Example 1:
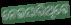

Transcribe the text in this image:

ନେଇସାରିଥିବେ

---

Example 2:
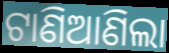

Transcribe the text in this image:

ଟାଣିଆଣିଲା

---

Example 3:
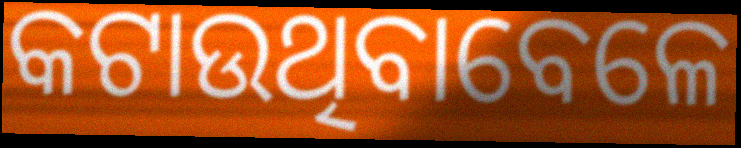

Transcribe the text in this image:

କଟାଉଥିବାବେଳେ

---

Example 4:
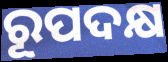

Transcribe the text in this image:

ରୂପଦକ୍ଷ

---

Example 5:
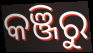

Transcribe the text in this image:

କଞ୍ଜିରୁ